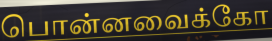
பொன்னவைக்கோ